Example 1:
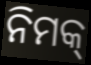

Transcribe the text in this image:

ନିମକ୍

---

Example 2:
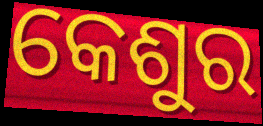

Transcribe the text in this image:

କେଶୁର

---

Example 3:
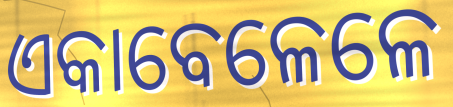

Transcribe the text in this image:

ଏକାବେଳେଳେ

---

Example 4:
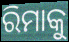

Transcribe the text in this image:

ରିମାକୁ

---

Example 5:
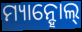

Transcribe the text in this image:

ମ୍ୟାନ୍ହୋଲ୍